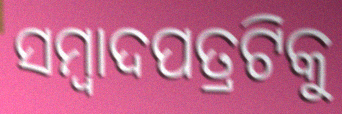
ସମ୍ବାଦପତ୍ରଟିକୁ